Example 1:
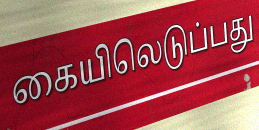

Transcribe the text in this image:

கையிலெடுப்பது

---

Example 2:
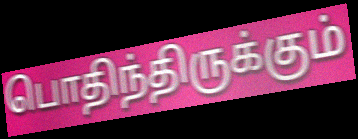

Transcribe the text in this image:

பொதிந்திருக்கும்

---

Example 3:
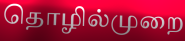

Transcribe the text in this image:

தொழில்முறை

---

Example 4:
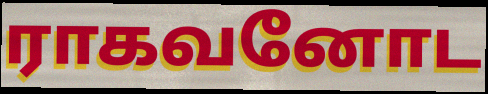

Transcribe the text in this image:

ராகவனோட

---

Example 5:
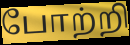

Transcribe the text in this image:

போற்றி